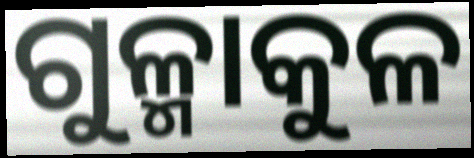
ଗୁଳ୍ମାକୁଳ